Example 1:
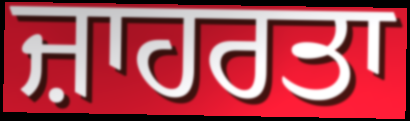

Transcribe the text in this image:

ਜ਼ਾਹਰਤਾ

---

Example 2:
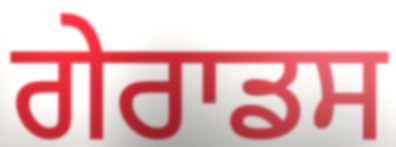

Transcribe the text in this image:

ਗੇਰਾਡਸ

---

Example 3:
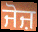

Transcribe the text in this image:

ਜੋਜ਼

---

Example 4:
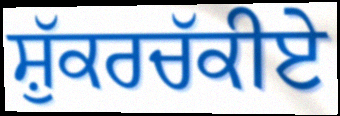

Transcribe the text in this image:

ਸ਼ੁੱਕਰਚੱਕੀਏ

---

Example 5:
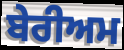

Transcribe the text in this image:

ਬੇਰੀਅਮ